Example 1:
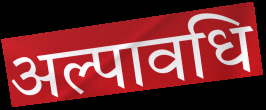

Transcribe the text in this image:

अल्पावधि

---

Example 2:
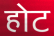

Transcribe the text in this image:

होट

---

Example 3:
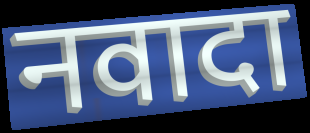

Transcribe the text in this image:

नवादा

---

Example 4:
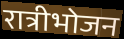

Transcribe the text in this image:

रात्रीभोजन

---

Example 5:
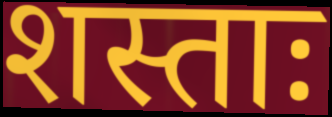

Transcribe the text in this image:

शस्ताः